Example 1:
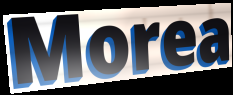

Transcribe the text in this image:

Morea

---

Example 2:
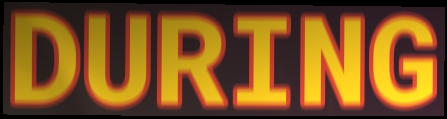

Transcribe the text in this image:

DURING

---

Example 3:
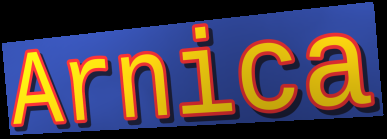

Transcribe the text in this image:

Arnica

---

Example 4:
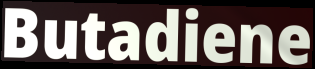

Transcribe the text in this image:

Butadiene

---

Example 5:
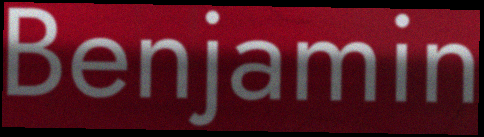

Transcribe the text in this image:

Benjamin